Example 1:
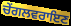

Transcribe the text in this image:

ਚੇਂਗਲਵਰਾਇਣ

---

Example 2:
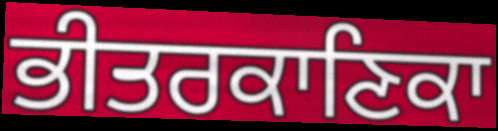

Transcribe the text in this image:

ਭੀਤਰਕਾਣਿਕਾ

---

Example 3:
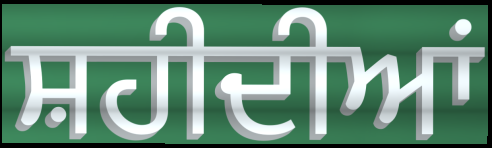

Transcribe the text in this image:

ਸ਼ਹੀਦੀਆਂ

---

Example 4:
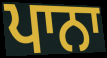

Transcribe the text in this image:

ਪਾਨਾ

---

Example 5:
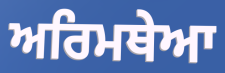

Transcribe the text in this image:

ਅਰਿਮਥੇਆ